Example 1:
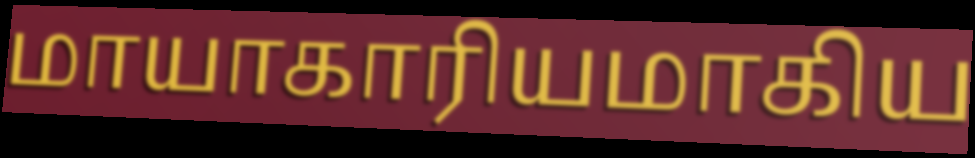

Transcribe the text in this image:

மாயாகாரியமாகிய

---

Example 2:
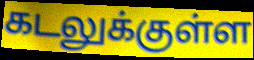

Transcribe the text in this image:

கடலுக்குள்ள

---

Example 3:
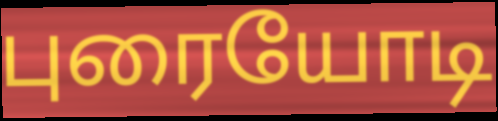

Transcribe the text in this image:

புரையோடி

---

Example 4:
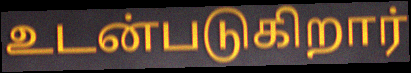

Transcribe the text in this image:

உடன்படுகிறார்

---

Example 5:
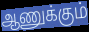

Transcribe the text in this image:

ஆணுக்கும்